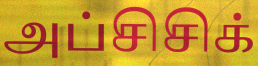
அப்சிசிக்